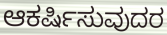
ಆಕರ್ಷಿಸುವುದರ